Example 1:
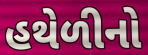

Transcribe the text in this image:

હથેળીનો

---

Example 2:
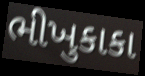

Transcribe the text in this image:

ભીખુકાકા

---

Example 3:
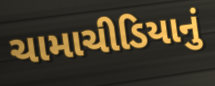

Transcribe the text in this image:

ચામાચીડિયાનું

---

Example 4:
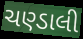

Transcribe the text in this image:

ચણ્ડાલી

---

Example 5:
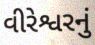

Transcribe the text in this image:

વીરેશ્વરનું